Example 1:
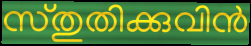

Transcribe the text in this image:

സ്തുതിക്കുവിൻ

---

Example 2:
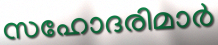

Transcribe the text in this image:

സഹോദരിമാർ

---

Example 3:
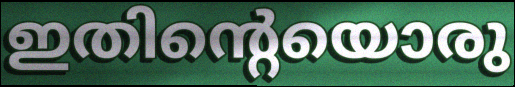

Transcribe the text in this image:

ഇതിന്റെയൊരു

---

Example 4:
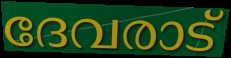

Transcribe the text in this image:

ദേവരാട്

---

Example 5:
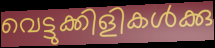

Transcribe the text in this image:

വെട്ടുക്കിളികൾക്കു